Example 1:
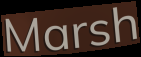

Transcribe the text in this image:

Marsh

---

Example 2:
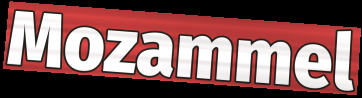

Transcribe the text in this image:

Mozammel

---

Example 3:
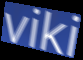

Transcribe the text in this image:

viki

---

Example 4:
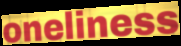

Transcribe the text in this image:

oneliness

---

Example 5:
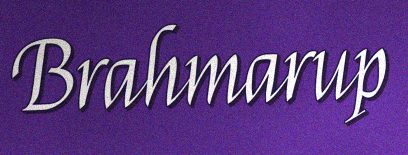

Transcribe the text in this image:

Brahmarup